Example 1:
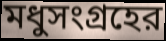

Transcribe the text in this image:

মধুসংগ্রহের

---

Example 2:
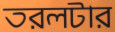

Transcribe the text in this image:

তরলটার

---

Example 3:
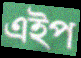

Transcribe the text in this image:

এইপ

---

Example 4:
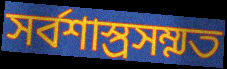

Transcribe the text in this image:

সর্বশাস্ত্রসম্মত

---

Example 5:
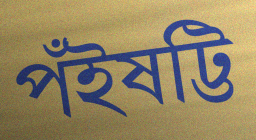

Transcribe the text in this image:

পঁইষট্টি